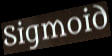
Sigmoid